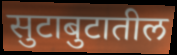
सुटाबुटातील